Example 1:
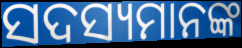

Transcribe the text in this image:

ସଦସ୍ୟମାନଙ୍କ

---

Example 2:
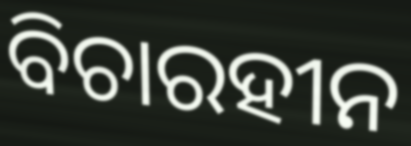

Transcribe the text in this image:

ବିଚାରହୀନ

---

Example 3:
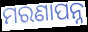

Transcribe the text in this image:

ମରଣାପନ୍ନ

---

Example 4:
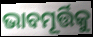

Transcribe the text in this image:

ଭାବମୂର୍ତ୍ତିକୁ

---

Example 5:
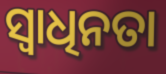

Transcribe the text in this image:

ସ୍ଵାଧିନତା